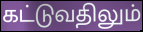
கட்டுவதிலும்